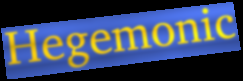
Hegemonic